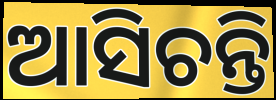
ଆସିଚନ୍ତି